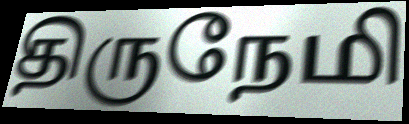
திருநேமி